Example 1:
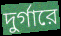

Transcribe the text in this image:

দুর্গারে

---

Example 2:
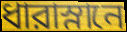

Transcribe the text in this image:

ধারাস্নানে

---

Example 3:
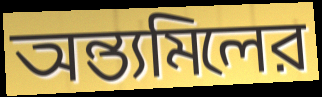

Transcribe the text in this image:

অন্ত্যমিলের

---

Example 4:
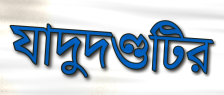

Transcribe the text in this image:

যাদুদণ্ডটির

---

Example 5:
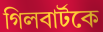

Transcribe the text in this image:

গিলবার্টকে